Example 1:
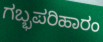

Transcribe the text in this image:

ಗಬ್ಭಪರಿಹಾರಂ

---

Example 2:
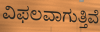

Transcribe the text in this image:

ವಿಫಲವಾಗುತ್ತಿವೆ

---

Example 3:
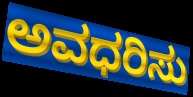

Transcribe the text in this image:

ಅವಧರಿಸು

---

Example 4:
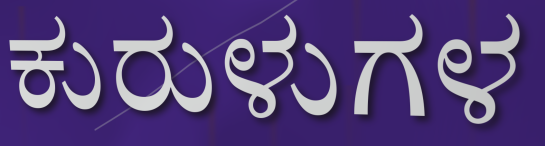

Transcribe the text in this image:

ಕುರುಳುಗಳ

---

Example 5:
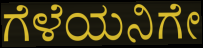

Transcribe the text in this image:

ಗೆಳೆಯನಿಗೇ